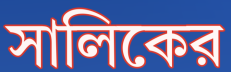
সালিকের